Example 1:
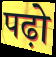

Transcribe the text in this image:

पढ़ो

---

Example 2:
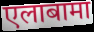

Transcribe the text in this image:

एलाबामा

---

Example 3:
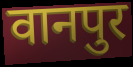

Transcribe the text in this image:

वानपुर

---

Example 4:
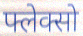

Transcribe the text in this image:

फ्लेक्सो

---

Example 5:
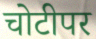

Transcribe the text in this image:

चोटीपर